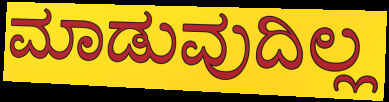
ಮಾಡುವುದಿಲ್ಲ